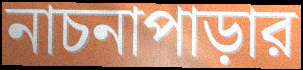
নাচনাপাড়ার